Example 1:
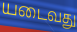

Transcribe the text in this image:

யடைவது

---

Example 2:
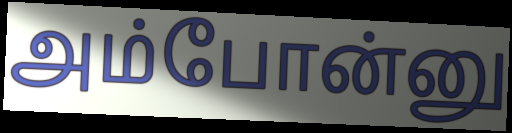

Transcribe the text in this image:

அம்போன்னு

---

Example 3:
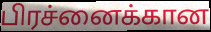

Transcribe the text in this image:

பிரச்னைக்கான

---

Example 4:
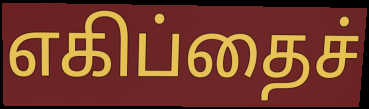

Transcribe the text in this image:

எகிப்தைச்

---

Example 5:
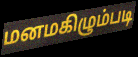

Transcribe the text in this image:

மனமகிழும்படி